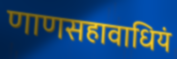
णाणसहावाधियं